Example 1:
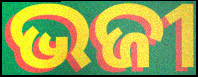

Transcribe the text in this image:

ଭଜୀ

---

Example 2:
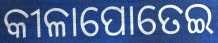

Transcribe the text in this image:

କୀଳାପୋତେଇ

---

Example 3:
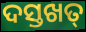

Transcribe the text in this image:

ଦସ୍ତଖତ୍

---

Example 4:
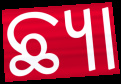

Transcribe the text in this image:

ଛ୍ୟା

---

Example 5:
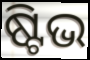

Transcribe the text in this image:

ଷ୍ଟିଭ